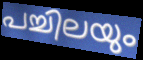
പച്ചിലയും